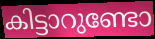
കിട്ടാറുണ്ടോ